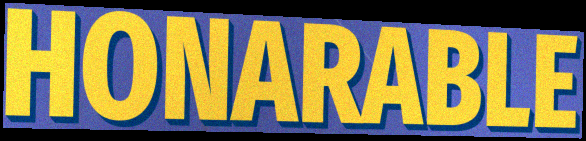
HONARABLE